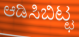
ಆಡಿಸಿಬಿಟ್ಟ